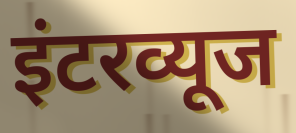
इंटरव्यूज